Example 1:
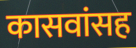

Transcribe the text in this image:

कासवांसह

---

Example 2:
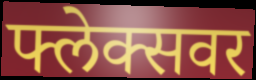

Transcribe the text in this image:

फ्लेक्सवर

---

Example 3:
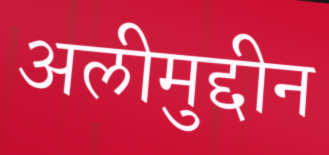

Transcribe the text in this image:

अलीमुद्दीन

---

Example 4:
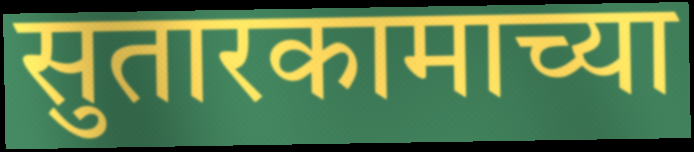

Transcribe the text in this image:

सुतारकामाच्या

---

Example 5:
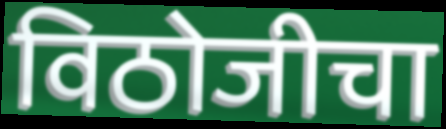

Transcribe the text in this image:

विठोजीचा